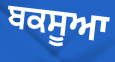
ਬਕਸੂਆ